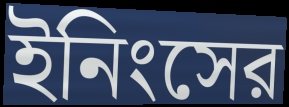
ইনিংসের